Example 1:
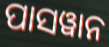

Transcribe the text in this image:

ପାସୱାନ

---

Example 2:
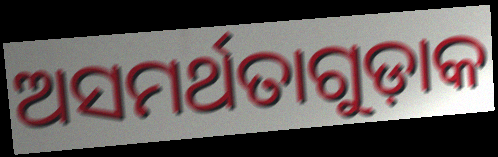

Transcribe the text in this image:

ଅସମର୍ଥତାଗୁଡ଼ାକ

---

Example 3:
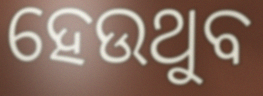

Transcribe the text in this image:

ହେଉଥୁବ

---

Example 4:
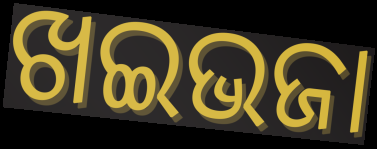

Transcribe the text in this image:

ଖଇଭଜା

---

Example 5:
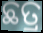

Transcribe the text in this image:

ଛତ୍ର